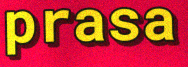
prasa